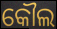
କୌଲ